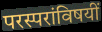
परस्परांविषयीं